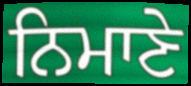
ਨਿਮਾਣੇ